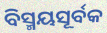
ବିସ୍ମୟସୂର୍ବକ